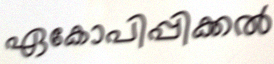
ഏകോപിപ്പിക്കൽ